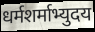
धर्मशर्माभ्युदय